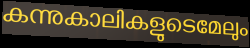
കന്നുകാലികളുടെമേലും